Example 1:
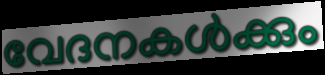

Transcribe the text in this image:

വേദനകൾക്കും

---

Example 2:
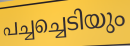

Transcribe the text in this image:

പച്ചച്ചെടിയും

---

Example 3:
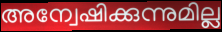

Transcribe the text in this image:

അന്വേഷിക്കുന്നുമില്ല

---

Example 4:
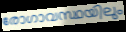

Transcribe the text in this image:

രോഗാവസ്ഥയിലും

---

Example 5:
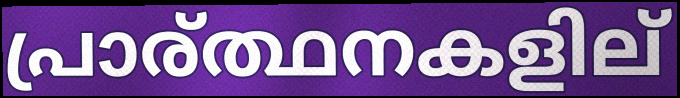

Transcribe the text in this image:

പ്രാര്ത്ഥനകളില്